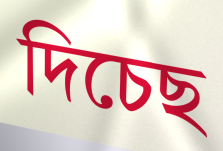
দিচেছ